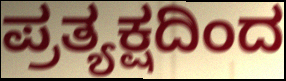
ಪ್ರತ್ಯಕ್ಷದಿಂದ